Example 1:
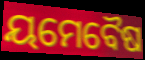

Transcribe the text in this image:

ୟମେବୈଷ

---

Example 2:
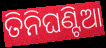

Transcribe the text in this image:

ତିନିଘଣ୍ଟିଆ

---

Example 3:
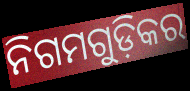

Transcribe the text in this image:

ନିଗମଗୁଡ଼ିକର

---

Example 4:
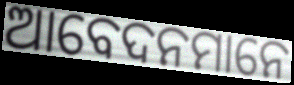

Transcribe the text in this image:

ଆବେଦନମାନେ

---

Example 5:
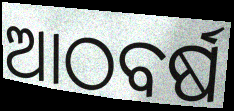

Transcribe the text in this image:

ଆଠବର୍ଷ